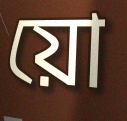
য়ো